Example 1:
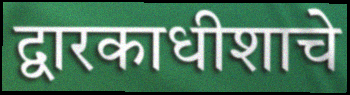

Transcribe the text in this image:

द्वारकाधीशाचे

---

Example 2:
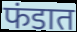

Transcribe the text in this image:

फंडात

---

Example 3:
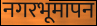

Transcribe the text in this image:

नगरभूमापन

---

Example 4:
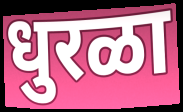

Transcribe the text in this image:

धुरळा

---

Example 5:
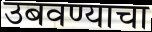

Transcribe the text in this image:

उबवण्याचा